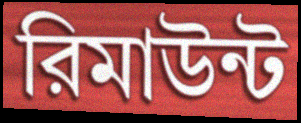
রিমাউন্ট